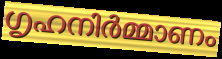
ഗൃഹനിർമ്മാണം